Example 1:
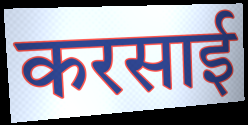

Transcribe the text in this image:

करसाई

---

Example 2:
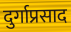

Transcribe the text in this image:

दुर्गाप्रसाद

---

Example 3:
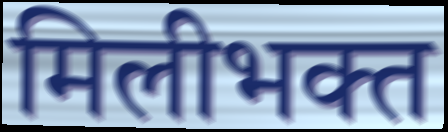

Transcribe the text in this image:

मिलीभक्त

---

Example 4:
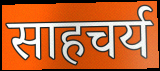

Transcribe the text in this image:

साहचर्य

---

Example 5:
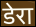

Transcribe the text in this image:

डेरा